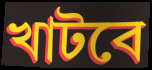
খাটবে